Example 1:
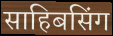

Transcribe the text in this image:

साहिबसिंग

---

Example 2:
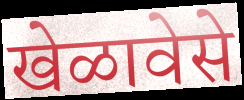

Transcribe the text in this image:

खेळावेसे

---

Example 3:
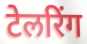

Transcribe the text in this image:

टेलरिंग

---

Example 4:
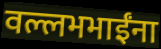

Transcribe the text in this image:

वल्लभभाईंना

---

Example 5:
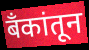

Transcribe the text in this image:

बँकांतून